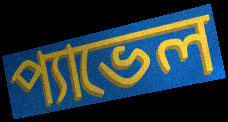
প্যাভেল